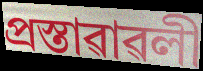
প্ৰস্তাৱাৱলী